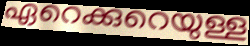
ഏറെക്കുറെയുള്ള